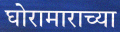
घोरामाराच्या